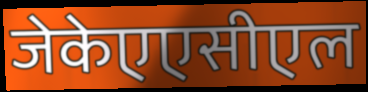
जेकेएएसीएल